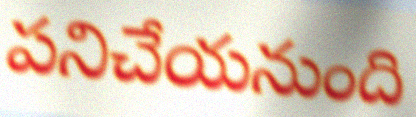
పనిచేయనుంది